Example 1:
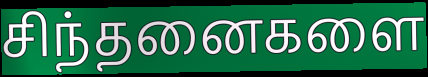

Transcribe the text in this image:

சிந்தனைகளை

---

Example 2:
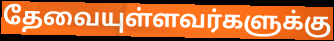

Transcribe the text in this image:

தேவையுள்ளவர்களுக்கு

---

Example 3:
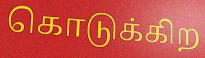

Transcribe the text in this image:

கொடுக்கிற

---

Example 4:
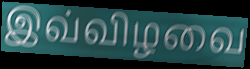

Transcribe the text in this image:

இவ்விழவை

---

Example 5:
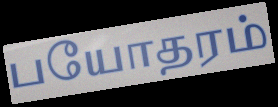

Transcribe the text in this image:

பயோதரம்